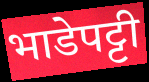
भाडेपट्टी